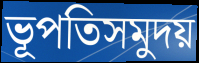
ভূপতিসমুদয়